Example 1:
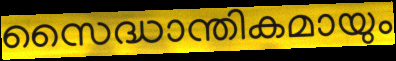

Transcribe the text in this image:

സൈദ്ധാന്തികമായും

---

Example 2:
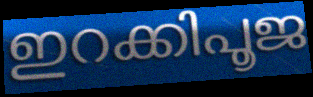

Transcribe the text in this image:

ഇറക്കിപൂജ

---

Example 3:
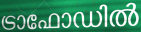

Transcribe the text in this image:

ട്രാഫോഡിൽ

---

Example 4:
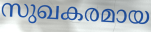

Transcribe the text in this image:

സുഖകരമായ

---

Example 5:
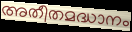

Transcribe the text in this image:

അതീതമദ്ധാനം